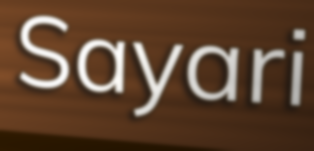
Sayari